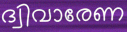
ദ്വിവാരേണ